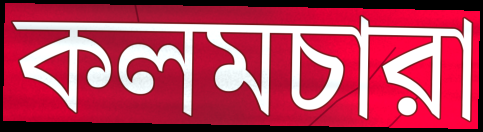
কলমচারা